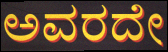
ಅವರದೇ